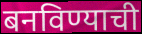
बनविण्याची